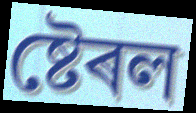
ষ্টেৰল